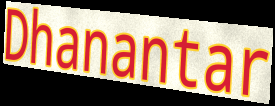
Dhanantar